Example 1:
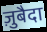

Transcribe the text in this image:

ज़ुबैदा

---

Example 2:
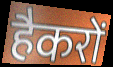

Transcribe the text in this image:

हैकरों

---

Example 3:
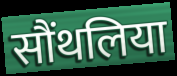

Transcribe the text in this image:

सौंथलिया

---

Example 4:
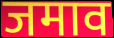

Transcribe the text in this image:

जमाव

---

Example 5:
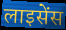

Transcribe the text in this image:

लाइसेंस